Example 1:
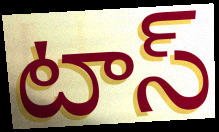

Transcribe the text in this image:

టాస్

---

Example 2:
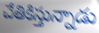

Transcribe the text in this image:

చేతికిస్తున్నాడు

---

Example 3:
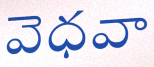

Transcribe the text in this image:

వెధవా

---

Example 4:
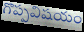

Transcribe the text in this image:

గొప్పవిషయం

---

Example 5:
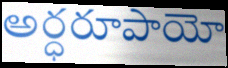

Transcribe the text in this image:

అర్ధరూపాయో